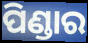
ପିଣ୍ଡାର